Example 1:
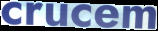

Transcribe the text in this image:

crucem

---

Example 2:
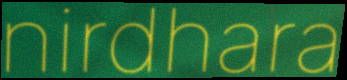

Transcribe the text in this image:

nirdhara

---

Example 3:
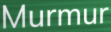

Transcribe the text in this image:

Murmur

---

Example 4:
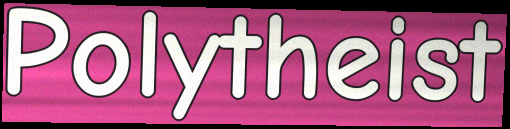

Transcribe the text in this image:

Polytheist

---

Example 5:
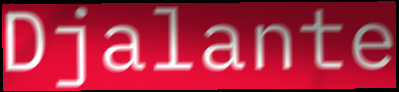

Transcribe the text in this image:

Djalante